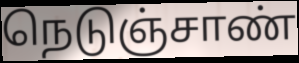
நெடுஞ்சாண்